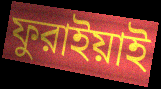
ফুরাইয়াই